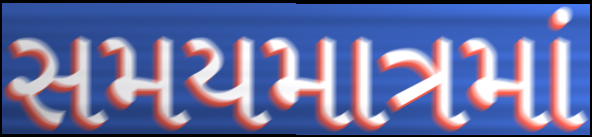
સમયમાત્રમાં